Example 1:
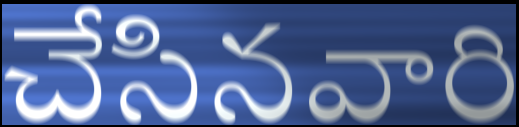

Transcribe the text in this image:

చేసినవారి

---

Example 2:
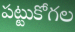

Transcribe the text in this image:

పట్టుకోగల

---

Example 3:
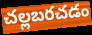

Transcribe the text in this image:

చల్లబరచడం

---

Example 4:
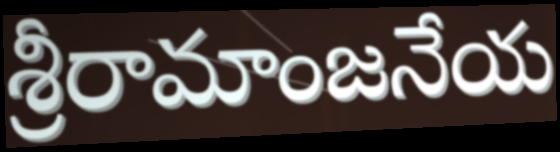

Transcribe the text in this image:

శ్రీరామాంజనేయ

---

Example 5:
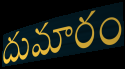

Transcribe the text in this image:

దుమారం